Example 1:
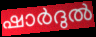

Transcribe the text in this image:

ഷാർദുൽ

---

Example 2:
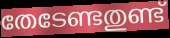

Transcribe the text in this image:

തേടേണ്ടതുണ്ട്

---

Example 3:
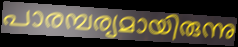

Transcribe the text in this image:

പാരമ്പര്യമായിരുന്നു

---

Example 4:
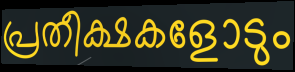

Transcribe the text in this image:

പ്രതീക്ഷകളോടും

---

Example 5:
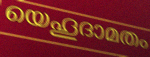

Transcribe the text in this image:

യെഹൂദാമതം